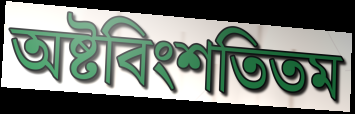
অষ্টবিংশতিতম